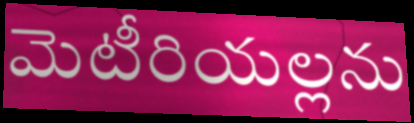
మెటీరియల్లను